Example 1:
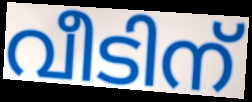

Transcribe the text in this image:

വീടിന്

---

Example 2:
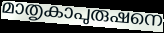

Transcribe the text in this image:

മാതൃകാപുരുഷനെ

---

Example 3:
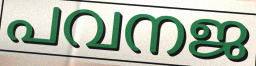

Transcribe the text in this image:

പവനജ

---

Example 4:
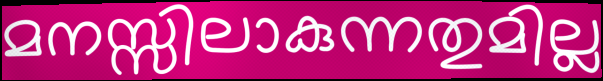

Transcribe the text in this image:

മനസ്സിലാകുന്നതുമില്ല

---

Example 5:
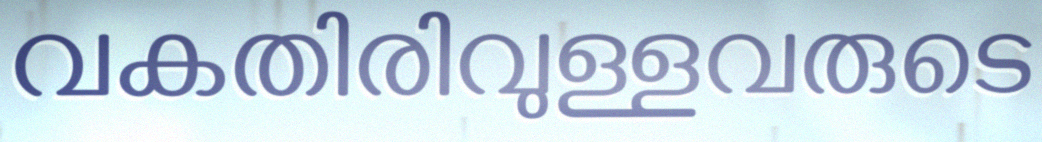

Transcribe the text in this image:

വകതിരിവുള്ളവരുടെ